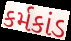
કર્મકાંડ